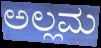
ಅಲ್ಲಮ